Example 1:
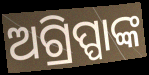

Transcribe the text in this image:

ଅଗ୍ରିପ୍ପାଙ୍କ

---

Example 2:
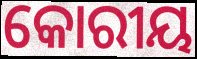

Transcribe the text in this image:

କୋରୀୟ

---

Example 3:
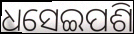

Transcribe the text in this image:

ଧସେଇପଶି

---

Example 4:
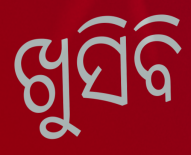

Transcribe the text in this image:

ଖୁସିବି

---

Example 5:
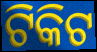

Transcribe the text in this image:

ଟିକିଟ